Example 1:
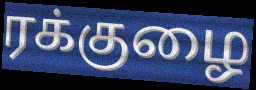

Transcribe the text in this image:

ரக்குழை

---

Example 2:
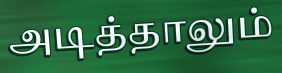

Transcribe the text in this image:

அடித்தாலும்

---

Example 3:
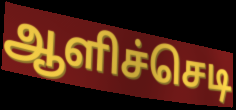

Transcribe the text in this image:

ஆளிச்செடி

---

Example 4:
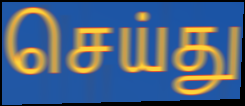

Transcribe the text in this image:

செய்து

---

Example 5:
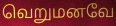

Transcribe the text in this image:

வெறுமனவே